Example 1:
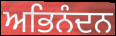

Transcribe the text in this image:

ਅਭਿਨੰਦਨ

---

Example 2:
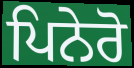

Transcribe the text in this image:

ਪਿਨੇਰੋ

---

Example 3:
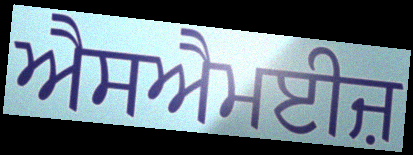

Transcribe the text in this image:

ਐਸਐਮਈਜ਼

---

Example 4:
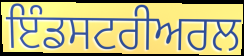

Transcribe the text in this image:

ਇੰਡਸਟਰੀਅਰਲ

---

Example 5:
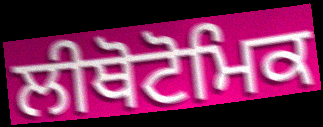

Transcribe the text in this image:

ਲੀਥੋਟੋਮਿਕ